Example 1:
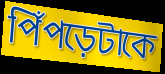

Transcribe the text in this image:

পিঁপড়েটাকে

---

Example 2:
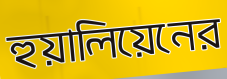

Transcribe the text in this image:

হুয়ালিয়েনের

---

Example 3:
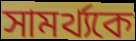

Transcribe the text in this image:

সামর্থ্যকে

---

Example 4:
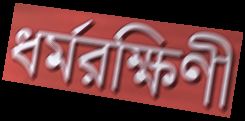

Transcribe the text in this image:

ধর্মরক্ষিণী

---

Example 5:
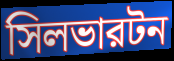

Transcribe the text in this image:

সিলভারটন